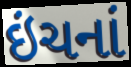
ઇંચનાં